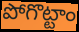
పోగొట్టాం